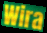
Wira